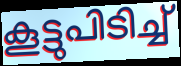
കൂട്ടുപിടിച്ച്